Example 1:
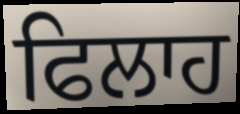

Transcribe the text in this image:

ਫਿਲਾਹ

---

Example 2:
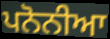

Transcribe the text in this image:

ਪਨੋਨੀਆ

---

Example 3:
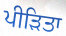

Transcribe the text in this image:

ਪੀੜਿਤਾ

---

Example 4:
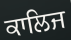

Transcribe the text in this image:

ਕਾਲਿਜ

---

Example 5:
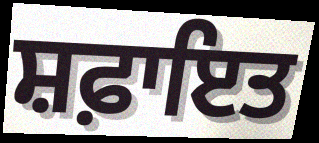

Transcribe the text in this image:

ਸ਼ਫ਼ਾਇਤ